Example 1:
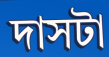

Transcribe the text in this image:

দাসটা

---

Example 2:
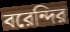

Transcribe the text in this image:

বরেন্দির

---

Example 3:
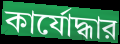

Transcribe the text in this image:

কার্যোদ্ধার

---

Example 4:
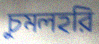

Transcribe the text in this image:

চুমলহরি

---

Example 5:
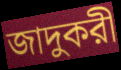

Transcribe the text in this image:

জাদুকরী